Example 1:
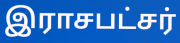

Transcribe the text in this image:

இராசபட்சர்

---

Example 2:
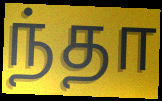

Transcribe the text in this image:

ந்தா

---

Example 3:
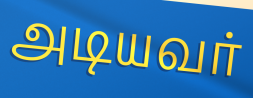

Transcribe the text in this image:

அடியவர்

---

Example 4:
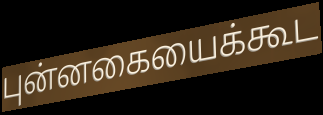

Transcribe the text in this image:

புன்னகையைக்கூட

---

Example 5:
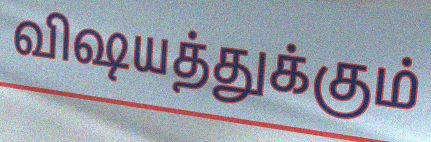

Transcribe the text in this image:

விஷயத்துக்கும்